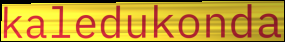
kaledukonda